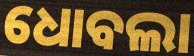
ଧୋବଲା